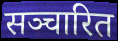
सञ्चारित